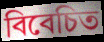
বিবেচিত